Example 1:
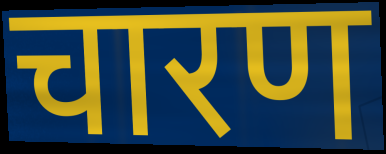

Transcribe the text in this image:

चारण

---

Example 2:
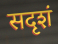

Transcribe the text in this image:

सदृशं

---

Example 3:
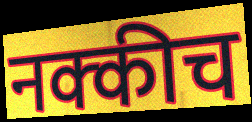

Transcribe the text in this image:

नक्‍कीच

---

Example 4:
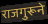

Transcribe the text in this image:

राजगुरूने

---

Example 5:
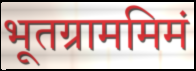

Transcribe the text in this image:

भूतग्राममिमं